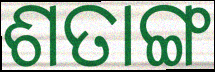
ଶତାଙ୍ଗ